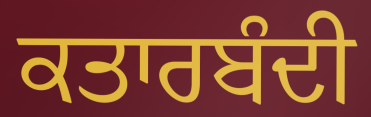
ਕਤਾਰਬੰਦੀ